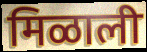
मिळाली